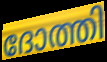
ദോത്തി